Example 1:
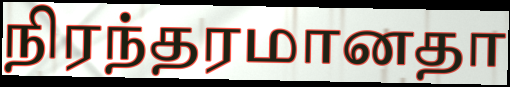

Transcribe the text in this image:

நிரந்தரமானதா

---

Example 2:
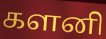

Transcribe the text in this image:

களனி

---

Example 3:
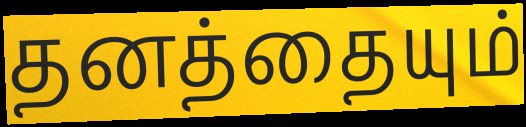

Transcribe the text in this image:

தனத்தையும்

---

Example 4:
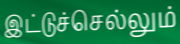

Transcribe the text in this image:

இட்டுச்செல்லும்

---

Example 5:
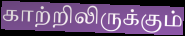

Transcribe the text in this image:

காற்றிலிருக்கும்